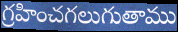
గ్రహించగలుగుతాము